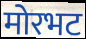
मोरभट